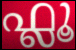
ഫ്ലൂ